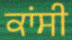
ਕਾਂਸੀ